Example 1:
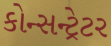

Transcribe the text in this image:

કોન્સન્ટ્રેટર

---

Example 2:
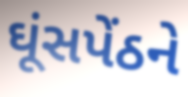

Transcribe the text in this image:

ઘૂંસપેંઠને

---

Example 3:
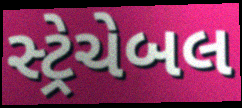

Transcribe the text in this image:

સ્ટ્રેચેબલ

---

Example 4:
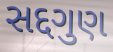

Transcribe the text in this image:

સદ્દગુણ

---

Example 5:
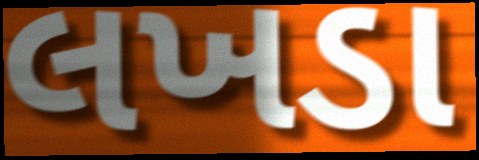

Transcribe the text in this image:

લખડા